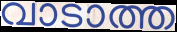
വാടാത്ത